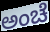
ಅಂಚೆ